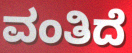
ವಂತಿದೆ